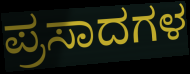
ಪ್ರಸಾದಗಳ